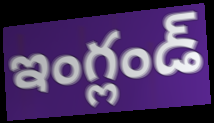
ఇంగ్లండ్